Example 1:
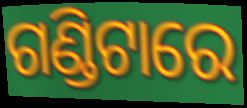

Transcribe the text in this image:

ଗଣ୍ଡିଟାରେ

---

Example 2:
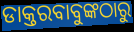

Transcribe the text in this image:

ଡାକ୍ତରବାବୁଙ୍କଠାରୁ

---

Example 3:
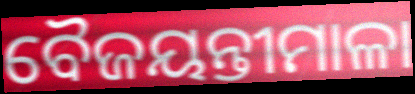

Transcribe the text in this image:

ବୈଜୟନ୍ତୀମାଳା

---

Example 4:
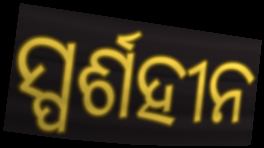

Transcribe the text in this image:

ସ୍ପର୍ଶହୀନ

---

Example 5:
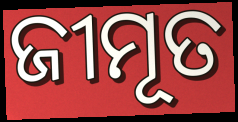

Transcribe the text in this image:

ଜୀମୂତ